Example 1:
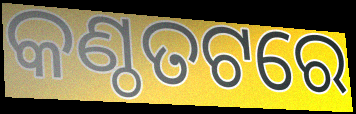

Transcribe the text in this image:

କଣ୍ଠତଟରେ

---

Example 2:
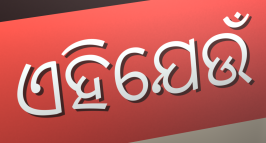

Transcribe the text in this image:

ଏହିଯେଉଁ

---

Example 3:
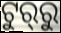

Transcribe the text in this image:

ଟୁର୍‍ରୁ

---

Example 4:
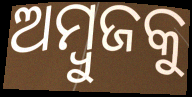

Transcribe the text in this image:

ଅମ୍ବୁଜକୁ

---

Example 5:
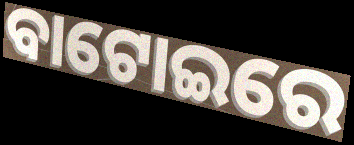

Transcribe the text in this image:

ବାଟୋଇରେ